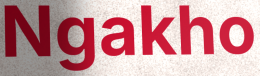
Ngakho